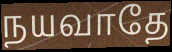
நயவாதே